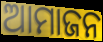
ଆମାଜନ